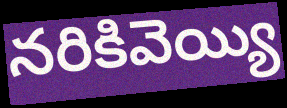
నరికివెయ్యి